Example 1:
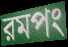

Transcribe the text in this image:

রমপং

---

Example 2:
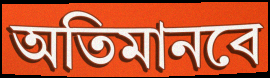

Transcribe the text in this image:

অতিমানবে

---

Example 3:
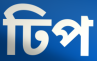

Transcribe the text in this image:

ঢিপ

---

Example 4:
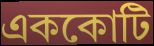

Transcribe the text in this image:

এককোটি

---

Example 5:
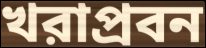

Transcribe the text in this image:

খরাপ্রবন